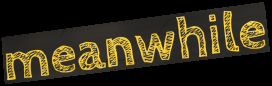
meanwhile